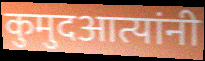
कुमुदआत्यांनी